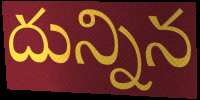
దున్నిన